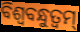
ବିଶ୍ଵବନ୍ଧୁତ୍ଵମ୍